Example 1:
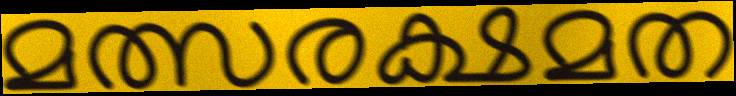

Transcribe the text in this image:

മത്സരക്ഷമത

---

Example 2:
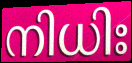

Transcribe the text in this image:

നിധിഃ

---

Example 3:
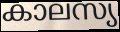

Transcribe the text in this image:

കാലസ്യ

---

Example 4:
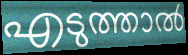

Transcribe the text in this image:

എടുത്താൽ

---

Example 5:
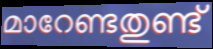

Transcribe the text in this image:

മാറേണ്ടതുണ്ട്